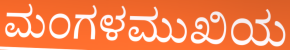
ಮಂಗಳಮುಖಿಯ